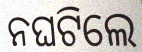
ନଘଟିଲେ